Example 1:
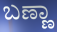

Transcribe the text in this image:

ಬಣ್ಣಾ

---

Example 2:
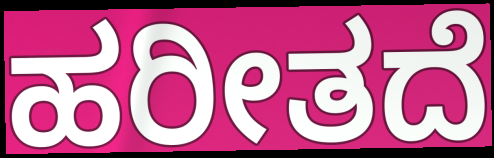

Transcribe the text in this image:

ಹರೀತದೆ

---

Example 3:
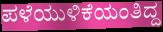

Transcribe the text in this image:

ಪಳೆಯುಳಿಕೆಯಂತಿದ್ದ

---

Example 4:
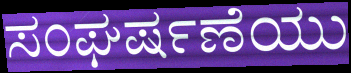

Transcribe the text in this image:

ಸಂಘರ್ಷಣೆಯು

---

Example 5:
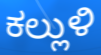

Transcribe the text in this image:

ಕಲ್ಲುಳಿ